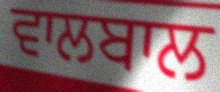
ਵਾਲਬਾਲ